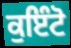
ਕੁਇੰਟੋ